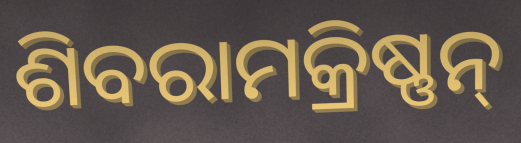
ଶିବରାମକ୍ରିଷ୍ଣନ୍